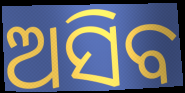
ଅସିବ